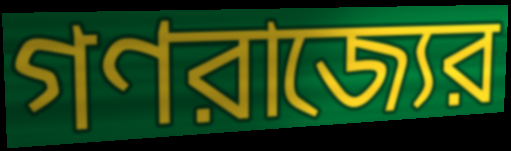
গণরাজ্যের